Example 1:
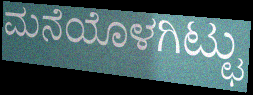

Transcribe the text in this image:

ಮನೆಯೊಳಗಿಟ್ಟು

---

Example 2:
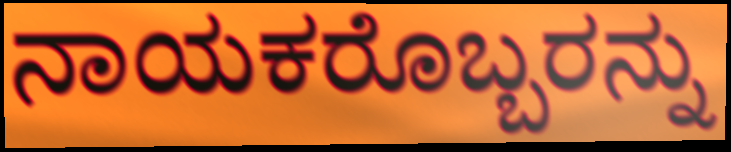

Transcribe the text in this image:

ನಾಯಕರೊಬ್ಬರನ್ನು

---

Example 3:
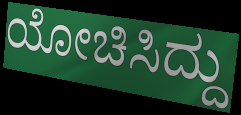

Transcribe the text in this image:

ಯೋಚಿಸಿದ್ದು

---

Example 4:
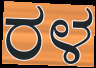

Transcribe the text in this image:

ರಳ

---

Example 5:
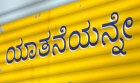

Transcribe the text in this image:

ಯಾತನೆಯನ್ನೇ